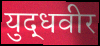
युद्धवीर